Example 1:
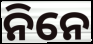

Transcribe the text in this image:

ନିନେ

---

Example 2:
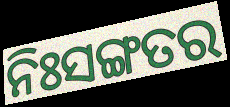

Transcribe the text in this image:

ନିଃସଙ୍ଗତର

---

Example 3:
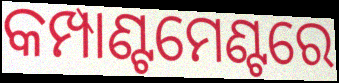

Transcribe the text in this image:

କମ୍ପାଣ୍ଟମେଣ୍ଟରେ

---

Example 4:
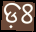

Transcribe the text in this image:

ଡ଼ଃ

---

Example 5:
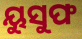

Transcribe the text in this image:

ୟୁସୁଫ